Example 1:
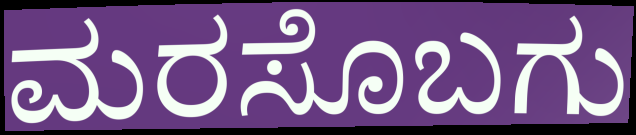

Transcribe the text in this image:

ಮರಸೊಬಗು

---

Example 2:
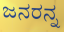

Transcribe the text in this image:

ಜನರನ್ನ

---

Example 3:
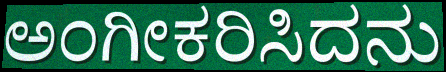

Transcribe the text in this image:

ಅಂಗೀಕರಿಸಿದನು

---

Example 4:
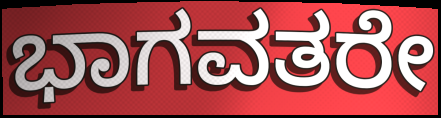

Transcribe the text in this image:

ಭಾಗವತರೇ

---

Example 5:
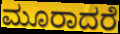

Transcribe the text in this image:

ಮೂರಾದರೆ